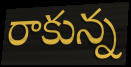
రాకున్న